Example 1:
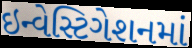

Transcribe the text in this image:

ઇન્વેસ્ટિગેશનમાં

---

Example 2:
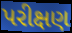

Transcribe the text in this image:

પરીક્ષણ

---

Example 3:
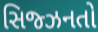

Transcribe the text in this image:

સિજ્ઝનતો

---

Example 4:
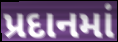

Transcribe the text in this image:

પ્રદાનમાં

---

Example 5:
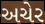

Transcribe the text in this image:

અચેર